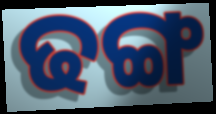
ଢଙ୍ଗ